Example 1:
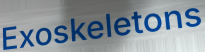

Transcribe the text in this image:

Exoskeletons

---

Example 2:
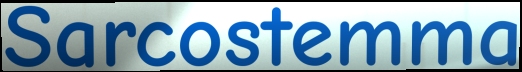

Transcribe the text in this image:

Sarcostemma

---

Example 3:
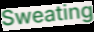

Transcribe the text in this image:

Sweating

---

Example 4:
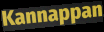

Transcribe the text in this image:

Kannappan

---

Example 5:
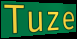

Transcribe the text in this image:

Tuze